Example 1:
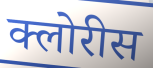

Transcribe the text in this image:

क्लोरीस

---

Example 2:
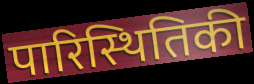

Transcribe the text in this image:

पारिस्थितिकी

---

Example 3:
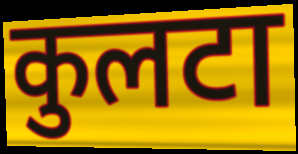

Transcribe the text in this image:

कुलटा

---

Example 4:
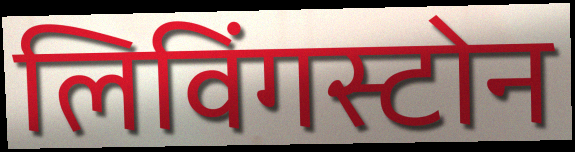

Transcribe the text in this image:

लिविंगस्टोन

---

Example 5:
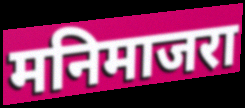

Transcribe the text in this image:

मनिमाजरा